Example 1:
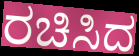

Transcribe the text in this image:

ರಚಿಸಿದ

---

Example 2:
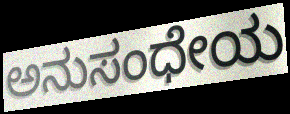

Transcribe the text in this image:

ಅನುಸಂಧೇಯ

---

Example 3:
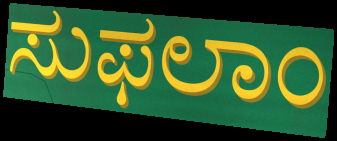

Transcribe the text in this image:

ಸುಫಲಾಂ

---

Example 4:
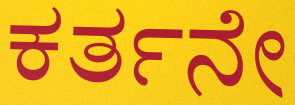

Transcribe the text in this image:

ಕರ್ತನೇ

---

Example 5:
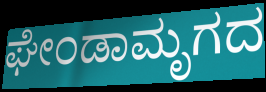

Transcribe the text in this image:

ಘೇಂಡಾಮೃಗದ